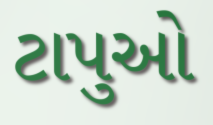
ટાપુઓ